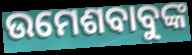
ଉମେଶବାବୁଙ୍କ